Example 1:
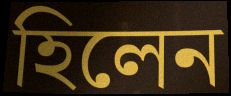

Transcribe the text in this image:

হিলেন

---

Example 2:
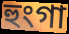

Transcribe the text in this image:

হুংগা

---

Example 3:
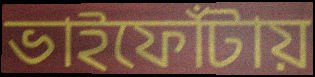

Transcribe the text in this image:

ভাইফোঁটায়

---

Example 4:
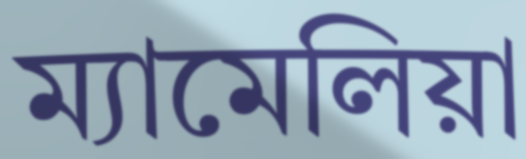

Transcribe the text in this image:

ম্যামেলিয়া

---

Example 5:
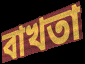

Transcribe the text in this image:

বাখতা